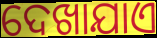
ଦେଖାଯାଏ